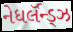
નેધર્લૅન્ડ્ઝ